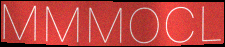
MMMOCL